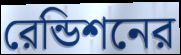
রেন্ডিশনের